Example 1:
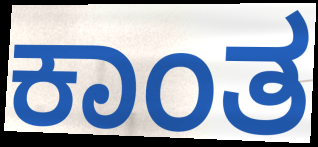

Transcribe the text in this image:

ಕಾಂತ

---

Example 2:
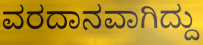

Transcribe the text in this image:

ವರದಾನವಾಗಿದ್ದು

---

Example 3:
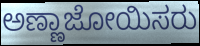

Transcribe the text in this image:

ಅಣ್ಣಾಜೋಯಿಸರು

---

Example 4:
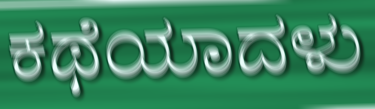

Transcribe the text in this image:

ಕಥೆಯಾದಳು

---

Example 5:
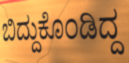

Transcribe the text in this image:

ಬಿದ್ದುಕೊಂಡಿದ್ದ